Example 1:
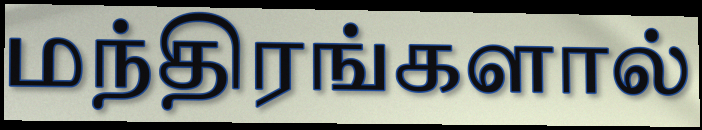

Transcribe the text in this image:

மந்திரங்களால்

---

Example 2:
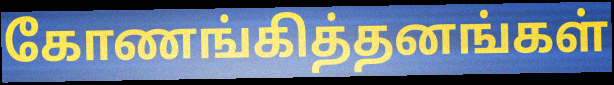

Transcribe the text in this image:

கோணங்கித்தனங்கள்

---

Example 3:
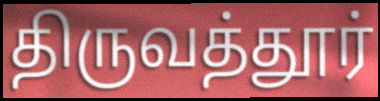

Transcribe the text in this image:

திருவத்தூர்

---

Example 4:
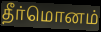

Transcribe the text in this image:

தீர்மொனம்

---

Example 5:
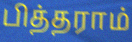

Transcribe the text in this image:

பித்தராம்